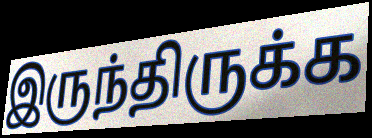
இருந்திருக்க